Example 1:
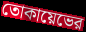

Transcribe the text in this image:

তোকায়েভের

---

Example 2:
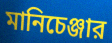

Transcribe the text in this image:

মানিচেঞ্জার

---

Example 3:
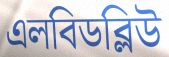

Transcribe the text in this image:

এলবিডব্লিউ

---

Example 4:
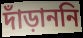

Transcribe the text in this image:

দাঁড়াননি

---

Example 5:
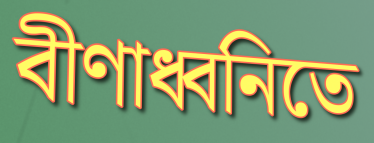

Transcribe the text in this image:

বীণাধ্বনিতে